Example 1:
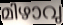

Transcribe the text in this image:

മിഴാവു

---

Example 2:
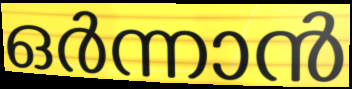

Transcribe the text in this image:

ഒർന്നാൻ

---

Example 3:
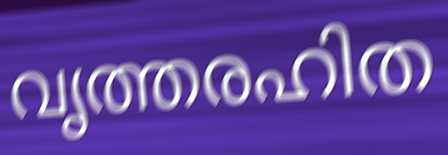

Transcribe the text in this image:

വൃത്തരഹിത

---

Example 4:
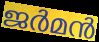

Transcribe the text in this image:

ജർമൻ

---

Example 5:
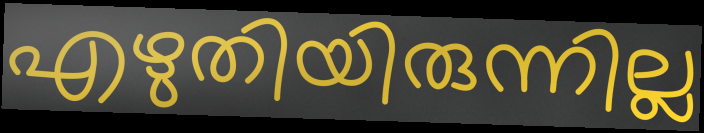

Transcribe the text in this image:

എഴുതിയിരുന്നില്ല